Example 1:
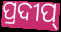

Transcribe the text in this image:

ପ୍ରଦୀପ୍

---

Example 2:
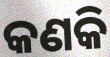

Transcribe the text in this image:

କଣକି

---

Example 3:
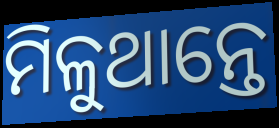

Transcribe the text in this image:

ମିଳୁଥାନ୍ତେ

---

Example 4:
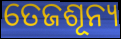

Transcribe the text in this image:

ତେଜଶୂନ୍ୟ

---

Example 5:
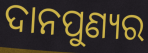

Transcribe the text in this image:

ଦାନପୁଣ୍ୟର